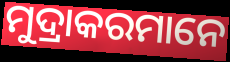
ମୁଦ୍ରାକରମାନେ